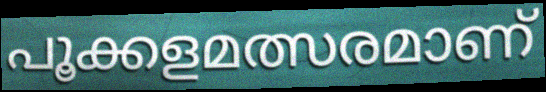
പൂക്കളമത്സരമാണ്